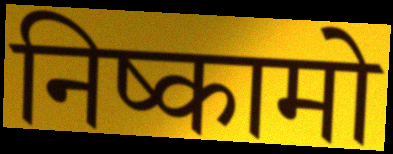
निष्कामो